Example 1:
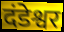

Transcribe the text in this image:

दंडेश्वर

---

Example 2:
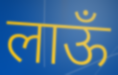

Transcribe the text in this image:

लाऊँ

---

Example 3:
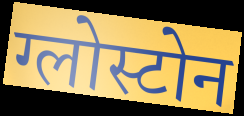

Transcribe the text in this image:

ग्लोस्टोन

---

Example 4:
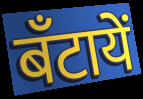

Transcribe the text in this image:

बँटायें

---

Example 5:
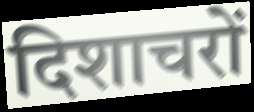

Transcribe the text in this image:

दिशाचरों